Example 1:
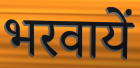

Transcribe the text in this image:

भरवायें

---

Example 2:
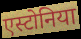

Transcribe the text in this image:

एस्टोनिया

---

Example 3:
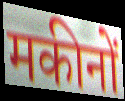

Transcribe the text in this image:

मकीनों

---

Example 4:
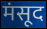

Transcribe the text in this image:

मंसूद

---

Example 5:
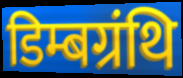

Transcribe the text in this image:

डिम्बग्रंथि